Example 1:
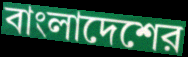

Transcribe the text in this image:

বাংলাদেশের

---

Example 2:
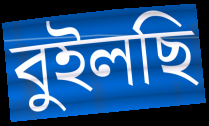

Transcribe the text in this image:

বুইলছি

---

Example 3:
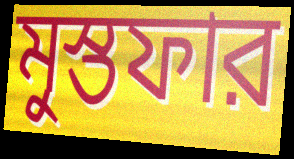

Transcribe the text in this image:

মুস্তফার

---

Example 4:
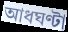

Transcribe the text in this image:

আধঘণ্টা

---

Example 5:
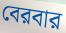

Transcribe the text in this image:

বেরবার